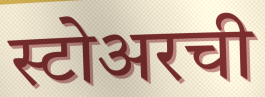
स्टोअरची